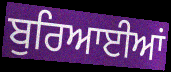
ਬੁਰਿਆਈਆਂ